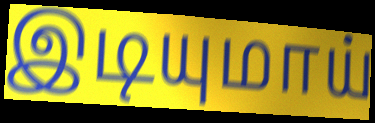
இடியுமாய்